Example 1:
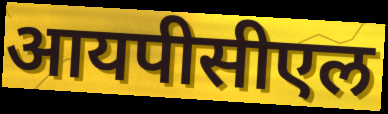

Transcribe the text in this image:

आयपीसीएल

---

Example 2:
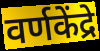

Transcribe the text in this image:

वर्णकेंद्रे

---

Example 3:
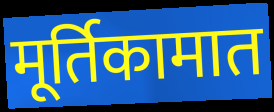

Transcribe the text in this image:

मूर्तिकामात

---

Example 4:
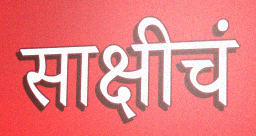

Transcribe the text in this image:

साक्षीचं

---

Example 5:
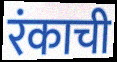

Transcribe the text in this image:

रंकाची